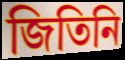
জিতিনি